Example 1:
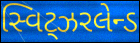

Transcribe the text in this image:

સ્વિટ્ઝરલેન્ડ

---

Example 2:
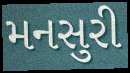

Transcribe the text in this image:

મનસુરી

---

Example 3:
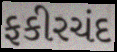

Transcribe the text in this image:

ફકીરચંદ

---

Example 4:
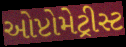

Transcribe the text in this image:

ઓપ્ટોમેટ્રીસ્ટ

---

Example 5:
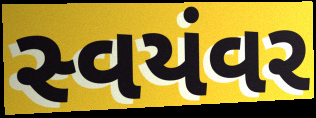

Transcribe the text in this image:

સ્વયંવર